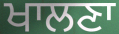
ਖਾਲਣਾ